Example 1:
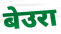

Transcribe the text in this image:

बेउरा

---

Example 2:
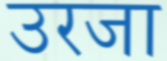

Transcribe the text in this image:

उरजा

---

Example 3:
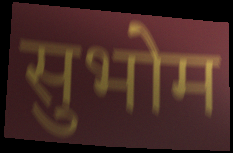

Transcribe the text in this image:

सुभोम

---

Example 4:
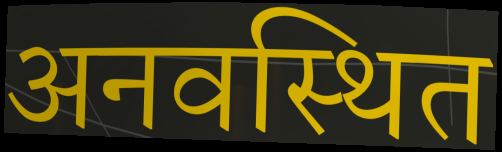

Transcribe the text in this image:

अनवस्थित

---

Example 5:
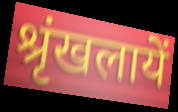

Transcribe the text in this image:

श्रृंखलायें